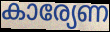
കാര്യേണ